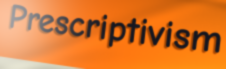
Prescriptivism